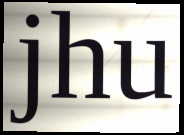
jhu